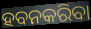
ହବନକରିବା